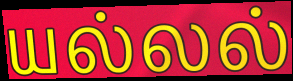
யல்லல்